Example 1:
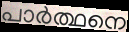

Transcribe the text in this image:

പാർത്ഥനെ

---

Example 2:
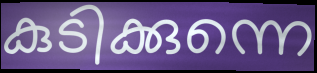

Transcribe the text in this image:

കുടിക്കുന്നെ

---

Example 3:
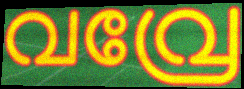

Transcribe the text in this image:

വവ്രേ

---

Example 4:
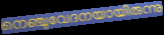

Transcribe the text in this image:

നെഞ്ചുവേദനയായിരുന്നു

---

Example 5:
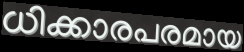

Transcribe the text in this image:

ധിക്കാരപരമായ